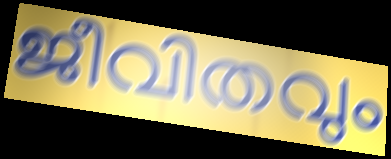
ജീവിതവും